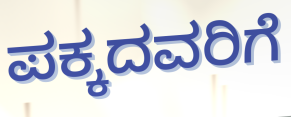
ಪಕ್ಕದವರಿಗೆ